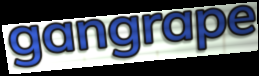
gangrape